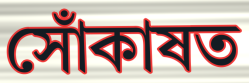
সোঁকাষত